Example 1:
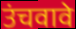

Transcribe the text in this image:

उंचवावे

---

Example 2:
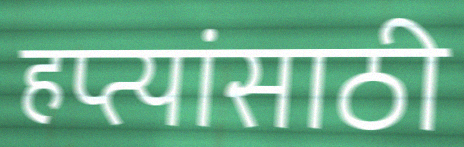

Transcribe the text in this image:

हप्त्यांसाठी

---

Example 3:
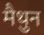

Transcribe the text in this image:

मैथुन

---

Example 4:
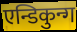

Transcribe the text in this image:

एन्डिकुन्ग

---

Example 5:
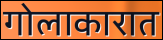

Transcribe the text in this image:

गोलाकारात